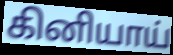
கினியாய்